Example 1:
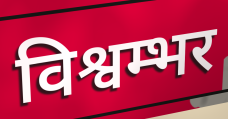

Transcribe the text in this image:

विश्वम्भर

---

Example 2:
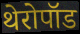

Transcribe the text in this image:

थेरोपॉड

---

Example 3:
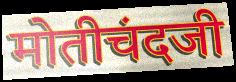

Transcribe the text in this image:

मोतीचंदजी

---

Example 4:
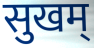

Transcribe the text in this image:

सुखम्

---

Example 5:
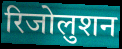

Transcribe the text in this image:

रिजोलुशन